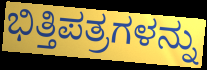
ಭಿತ್ತಿಪತ್ರಗಳನ್ನು